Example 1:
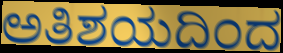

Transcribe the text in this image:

ಅತಿಶಯದಿಂದ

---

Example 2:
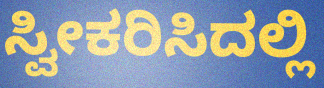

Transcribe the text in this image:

ಸ್ವೀಕರಿಸಿದಲ್ಲಿ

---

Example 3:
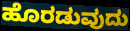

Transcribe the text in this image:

ಹೊರಡುವುದು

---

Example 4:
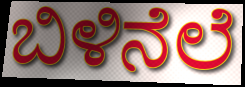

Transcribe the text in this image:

ಬಿಳಿನೆಲೆ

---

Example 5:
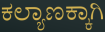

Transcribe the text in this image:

ಕಲ್ಯಾಣಕ್ಕಾಗಿ